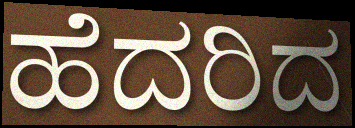
ಹೆದರಿದ